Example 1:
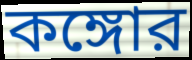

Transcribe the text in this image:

কঙ্গোর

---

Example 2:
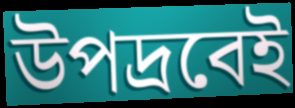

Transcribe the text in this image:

উপদ্রবেই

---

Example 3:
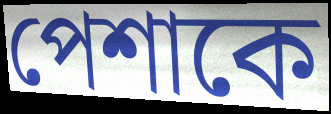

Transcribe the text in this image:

পেশাকে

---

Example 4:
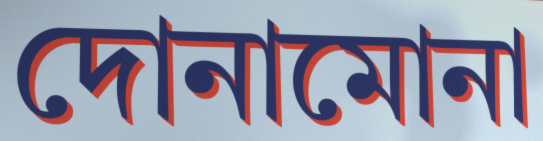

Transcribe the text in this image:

দোনামোনা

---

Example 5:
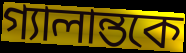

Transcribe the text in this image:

গ্যালান্তকে